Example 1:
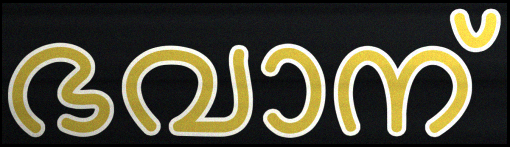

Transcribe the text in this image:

ഭവാന്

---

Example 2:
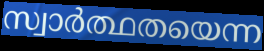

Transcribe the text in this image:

സ്വാർത്ഥതയെന്ന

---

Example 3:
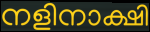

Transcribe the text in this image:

നളിനാക്ഷി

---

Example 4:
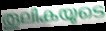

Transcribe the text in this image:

തൂലികയുടെ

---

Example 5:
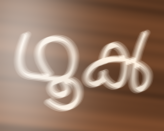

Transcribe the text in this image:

ഥൂൿ